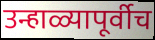
उन्हाळ्यापूर्वीच